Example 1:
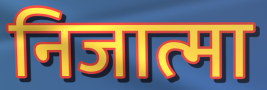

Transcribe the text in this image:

निजात्मा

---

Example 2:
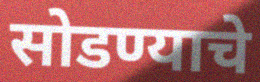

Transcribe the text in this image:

सोडण्याचे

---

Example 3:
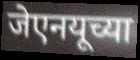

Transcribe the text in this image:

जेएनयूच्या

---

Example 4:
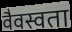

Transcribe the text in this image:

वैवस्वता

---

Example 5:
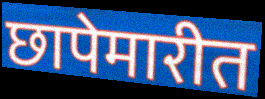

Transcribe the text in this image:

छापेमारीत